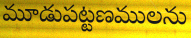
మూడుపట్టణములను